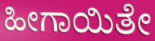
ಹೀಗಾಯಿತೇ